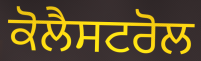
ਕੋਲੈਸਟਰੋਲ